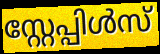
സ്റ്റേപ്പിൾസ്